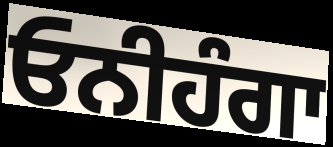
ਓਨੀਹੰਗਾ